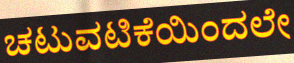
ಚಟುವಟಿಕೆಯಿಂದಲೇ